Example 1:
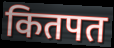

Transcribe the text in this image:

कितपत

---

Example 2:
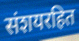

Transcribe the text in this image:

संशयरहित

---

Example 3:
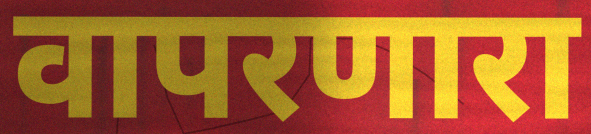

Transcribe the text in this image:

वापरणारा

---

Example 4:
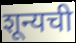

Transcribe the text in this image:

शून्यची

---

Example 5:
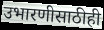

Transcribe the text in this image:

उभारणीसाठीही